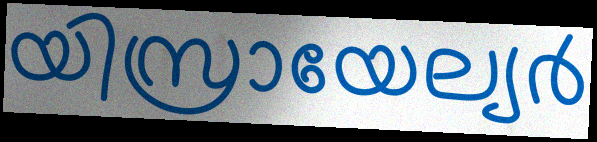
യിസ്രായേല്യർ